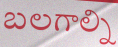
బలగాల్ని